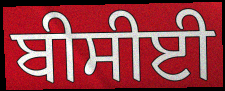
ਬੀਸੀਈ